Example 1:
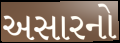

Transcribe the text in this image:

અસારનો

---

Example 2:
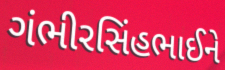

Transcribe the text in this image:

ગંભીરસિંહભાઈને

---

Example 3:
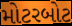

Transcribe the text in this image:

મોટરબોટ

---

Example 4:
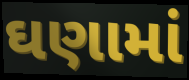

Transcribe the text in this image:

ઘણામાં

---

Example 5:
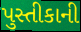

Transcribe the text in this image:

પુસ્તીકાની